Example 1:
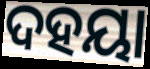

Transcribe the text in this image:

ଦହୟା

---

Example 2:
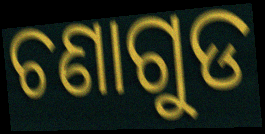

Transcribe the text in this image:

ଚଣାଗୁଡ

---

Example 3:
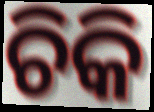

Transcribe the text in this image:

ଚିକି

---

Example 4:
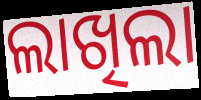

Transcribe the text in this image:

ଲାଖିଲା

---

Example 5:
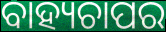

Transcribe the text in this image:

ବାହ୍ୟଚାପର